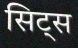
सिट्स